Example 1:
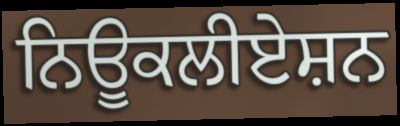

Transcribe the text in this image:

ਨਿਊਕਲੀਏਸ਼ਨ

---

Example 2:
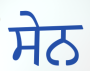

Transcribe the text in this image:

ਸੇਨ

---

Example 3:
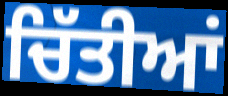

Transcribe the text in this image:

ਚਿੱਤੀਆਂ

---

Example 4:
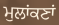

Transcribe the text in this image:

ਮੁਲਾਂਕਣਾਂ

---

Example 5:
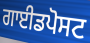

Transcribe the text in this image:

ਗਾਈਡਪੋਸਟ